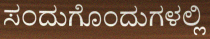
ಸಂದುಗೊಂದುಗಳಲ್ಲಿ